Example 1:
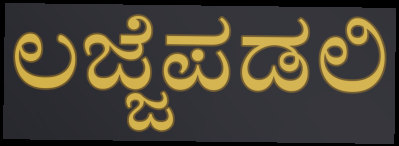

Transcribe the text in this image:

ಲಜ್ಜೆಪಡಲಿ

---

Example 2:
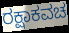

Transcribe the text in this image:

ರಕ್ಷಾಕವಚ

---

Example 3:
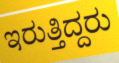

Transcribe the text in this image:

ಇರುತ್ತಿದ್ದರು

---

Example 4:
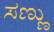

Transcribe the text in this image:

ಸಣ್ಣು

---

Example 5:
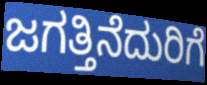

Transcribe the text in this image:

ಜಗತ್ತಿನೆದುರಿಗೆ